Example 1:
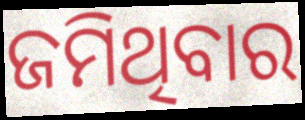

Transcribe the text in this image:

ଜମିଥିବାର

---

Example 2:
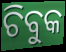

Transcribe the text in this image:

ଚିବୁକ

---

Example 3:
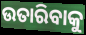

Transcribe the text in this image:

ଉତାରିବାକୁ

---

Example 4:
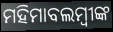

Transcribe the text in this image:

ମହିମାବଲମ୍ବୀଙ୍କ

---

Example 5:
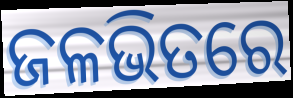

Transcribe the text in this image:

ଜଳଭିତରେ